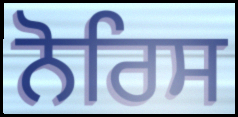
ਨੋਰਿਸ